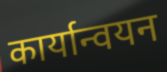
कार्यान्वयन